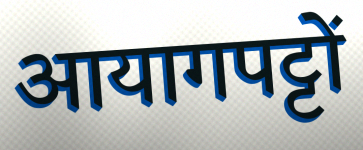
आयागपट्टों